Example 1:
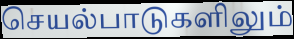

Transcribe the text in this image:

செயல்பாடுகளிலும்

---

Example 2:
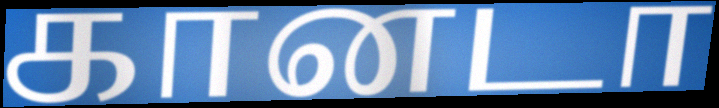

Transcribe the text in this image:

கானடா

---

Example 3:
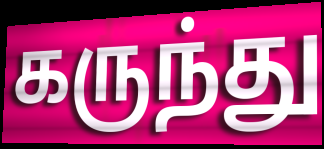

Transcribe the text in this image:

கருந்து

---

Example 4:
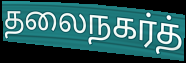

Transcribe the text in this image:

தலைநகர்த்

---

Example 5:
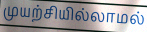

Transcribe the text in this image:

முயற்சியில்லாமல்